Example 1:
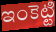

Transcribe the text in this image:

ఇంకెట్టి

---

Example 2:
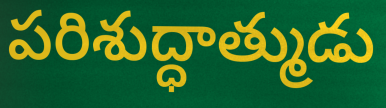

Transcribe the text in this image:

పరిశుద్ధాత్ముడు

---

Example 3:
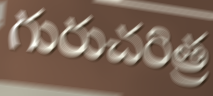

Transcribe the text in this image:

గురుచరిత్ర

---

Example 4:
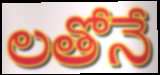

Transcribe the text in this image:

లతోనే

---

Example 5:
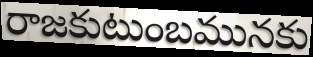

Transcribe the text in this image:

రాజకుటుంబమునకు